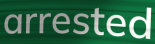
arrested